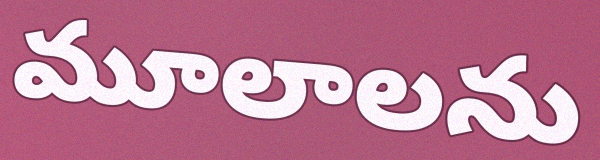
మూలాలను